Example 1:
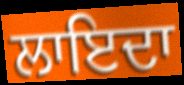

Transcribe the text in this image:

ਲਾਇਦਾ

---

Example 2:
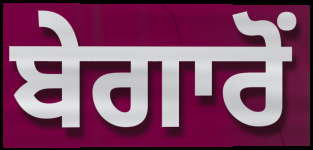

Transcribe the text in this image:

ਬੇਗਾਰੋਂ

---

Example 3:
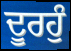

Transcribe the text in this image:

ਦੂਰਹੁੰ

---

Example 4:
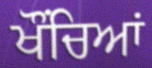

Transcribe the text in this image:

ਖੌਂਚਿਆਂ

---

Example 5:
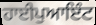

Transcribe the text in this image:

ਹਾਈਪੁਆਇੰਟ